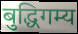
बुद्धिगम्य